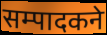
सम्पादकने